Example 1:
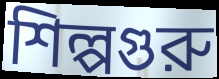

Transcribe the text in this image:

শিল্পগুরু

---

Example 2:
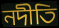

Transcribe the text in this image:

নদীতি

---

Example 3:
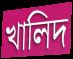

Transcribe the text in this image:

খালিদ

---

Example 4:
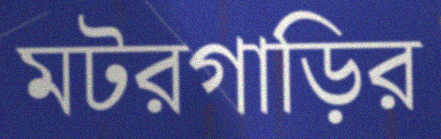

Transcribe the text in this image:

মটরগাড়ির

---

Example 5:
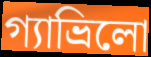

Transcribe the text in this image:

গ্যাভ্রিলো